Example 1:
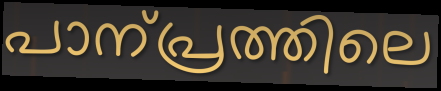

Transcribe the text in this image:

പാന്പ്രത്തിലെ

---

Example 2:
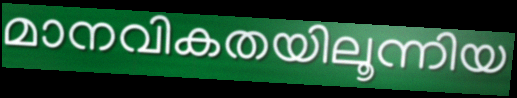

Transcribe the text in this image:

മാനവികതയിലൂന്നിയ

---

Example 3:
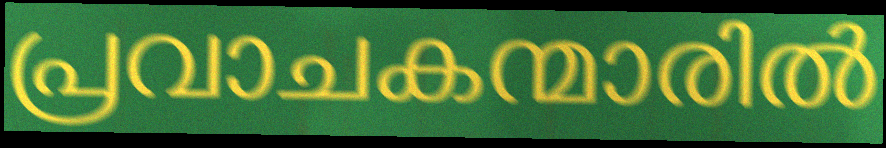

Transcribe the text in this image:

പ്രവാചകന്മാരിൽ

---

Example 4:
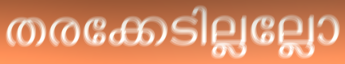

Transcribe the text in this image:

തരക്കേടില്ലല്ലോ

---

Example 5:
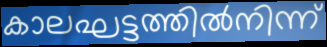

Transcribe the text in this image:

കാലഘട്ടത്തിൽനിന്ന്